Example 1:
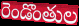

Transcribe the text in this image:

రెండొంతుల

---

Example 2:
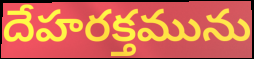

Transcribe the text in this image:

దేహరక్తమును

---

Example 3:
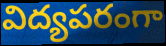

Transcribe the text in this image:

విద్యపరంగా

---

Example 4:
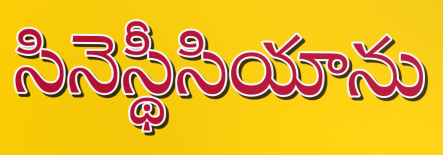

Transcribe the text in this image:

సినెస్థీసియాను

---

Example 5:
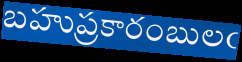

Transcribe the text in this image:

బహుప్రకారంబులఁ